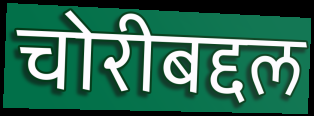
चोरीबद्दल